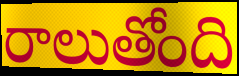
రాలుతోంది